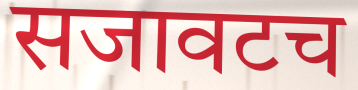
सजावटच